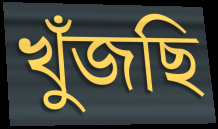
খুঁজছি